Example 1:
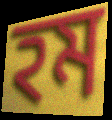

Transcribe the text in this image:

হম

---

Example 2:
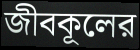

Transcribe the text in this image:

জীবকূলের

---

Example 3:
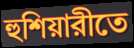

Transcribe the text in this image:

হুশিয়ারীতে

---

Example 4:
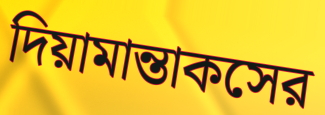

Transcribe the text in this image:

দিয়ামান্তাকসের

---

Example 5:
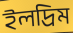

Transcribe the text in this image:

ইলদ্রিম